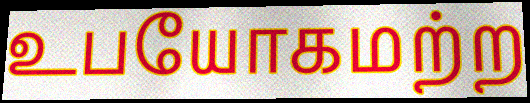
உபயோகமற்ற